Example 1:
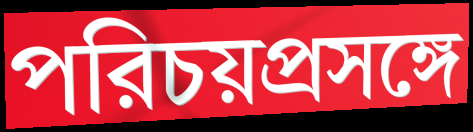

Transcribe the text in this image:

পরিচয়প্রসঙ্গে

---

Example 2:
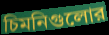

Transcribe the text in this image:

চিমনিগুলোর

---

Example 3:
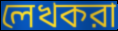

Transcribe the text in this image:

লেখকরা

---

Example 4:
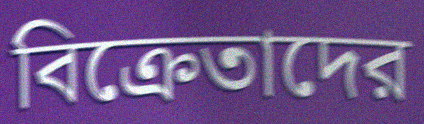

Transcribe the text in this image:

বিক্রেতাদের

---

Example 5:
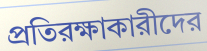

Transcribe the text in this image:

প্রতিরক্ষাকারীদের